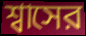
শ্বাসের